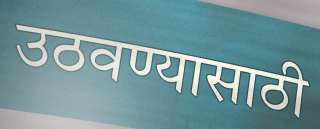
उठवण्यासाठी